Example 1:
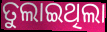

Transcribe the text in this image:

ତୁଲାଇଥିଲା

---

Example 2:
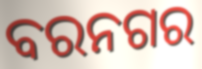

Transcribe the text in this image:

ବରନଗର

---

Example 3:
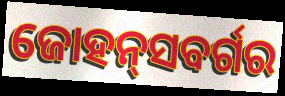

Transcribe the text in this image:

ଜୋହନ୍‌ସବର୍ଗର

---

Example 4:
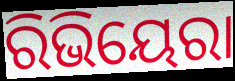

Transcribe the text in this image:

ରିଭିୟେରା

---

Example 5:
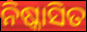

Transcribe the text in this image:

ନିଷ୍କାସିତ